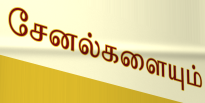
சேனல்களையும்